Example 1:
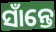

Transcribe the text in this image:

ସାଁନ୍ତେ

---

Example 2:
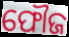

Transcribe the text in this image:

ଫୌଜ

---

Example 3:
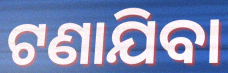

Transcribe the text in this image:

ଟଣାଯିବା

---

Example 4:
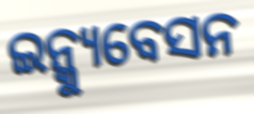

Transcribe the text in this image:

ଇନ୍କ୍ୟୁବେସନ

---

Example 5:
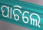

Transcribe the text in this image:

ପାଚିଲେ